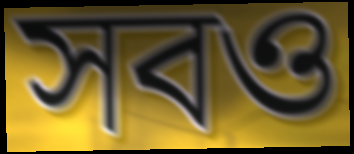
সবও